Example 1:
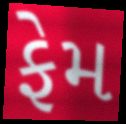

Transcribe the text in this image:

ફેમ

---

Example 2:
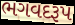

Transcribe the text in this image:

ભગવદરૂપ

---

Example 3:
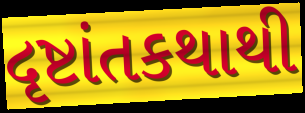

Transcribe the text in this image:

દૃષ્ટાંતકથાથી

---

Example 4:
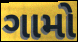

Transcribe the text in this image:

ગામો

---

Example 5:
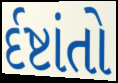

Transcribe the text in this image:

ર્દષ્ટાંતો